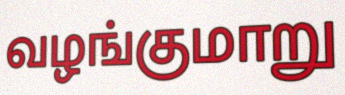
வழங்குமாறு